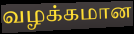
வழக்கமான